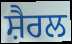
ਸ਼ੈਰਲ